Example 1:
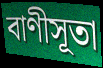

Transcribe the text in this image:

বাণীসূতা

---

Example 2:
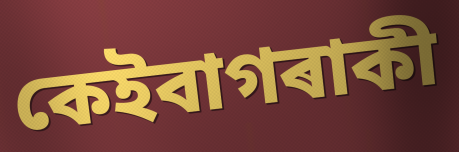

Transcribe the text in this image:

কেইবাগৰাকী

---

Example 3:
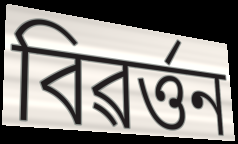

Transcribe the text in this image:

বিৱৰ্ত্তন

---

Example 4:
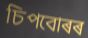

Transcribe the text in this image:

চিপবোৰৰ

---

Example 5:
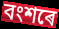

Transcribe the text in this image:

বংশৰে